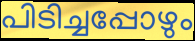
പിടിച്ചപ്പോഴും